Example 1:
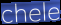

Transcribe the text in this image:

chele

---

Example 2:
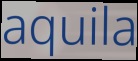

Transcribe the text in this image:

aquila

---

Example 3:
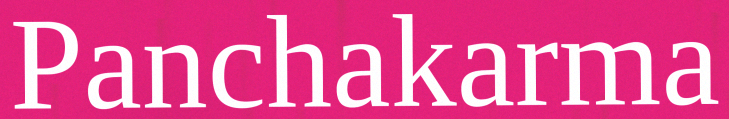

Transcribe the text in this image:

Panchakarma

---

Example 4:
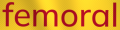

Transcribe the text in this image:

femoral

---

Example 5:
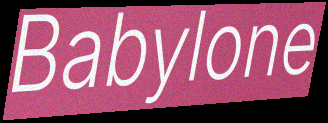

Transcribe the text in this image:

Babylone